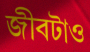
জীবটাও